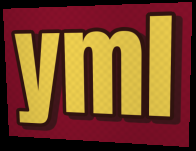
yml